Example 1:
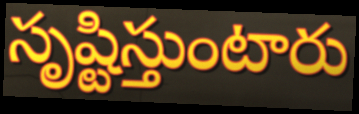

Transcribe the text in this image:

సృష్టిస్తుంటారు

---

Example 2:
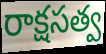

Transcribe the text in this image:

రాక్షసత్వ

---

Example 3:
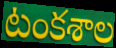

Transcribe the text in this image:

టంకశాల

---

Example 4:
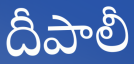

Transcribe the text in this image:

దీపాలీ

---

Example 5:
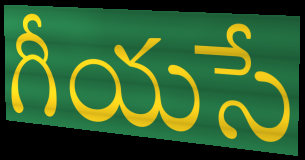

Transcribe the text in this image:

గీయసే